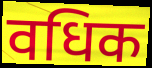
वधिक